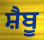
ਸ਼ੈਬੂ